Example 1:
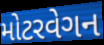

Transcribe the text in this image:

મોટરવેગન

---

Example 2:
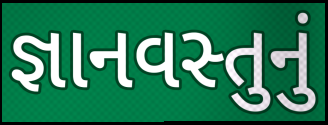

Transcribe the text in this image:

જ્ઞાનવસ્તુનું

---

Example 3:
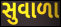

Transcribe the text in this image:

સુવાળા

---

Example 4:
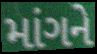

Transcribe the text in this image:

માંગને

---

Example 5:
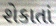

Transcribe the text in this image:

શેકાતાં